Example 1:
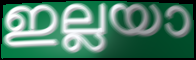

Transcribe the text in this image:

ഇല്ലയാ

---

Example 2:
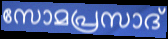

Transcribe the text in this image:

സോമപ്രസാദ്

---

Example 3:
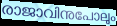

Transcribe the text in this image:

രാജാവിനുപോലും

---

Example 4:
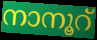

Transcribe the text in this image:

നാനൂറ്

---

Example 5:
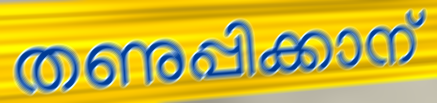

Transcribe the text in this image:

തണുപ്പിക്കാന്